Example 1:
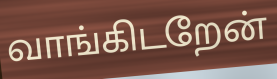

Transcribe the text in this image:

வாங்கிடறேன்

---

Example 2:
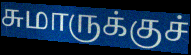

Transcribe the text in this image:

சுமாருக்குச்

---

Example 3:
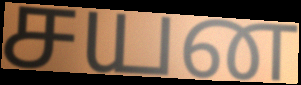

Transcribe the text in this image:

சயன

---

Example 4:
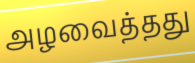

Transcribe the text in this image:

அழவைத்தது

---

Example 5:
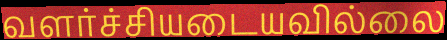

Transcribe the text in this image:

வளர்ச்சியடையவில்லை